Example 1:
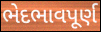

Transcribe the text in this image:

ભેદભાવપૂર્ણ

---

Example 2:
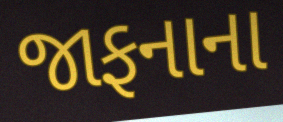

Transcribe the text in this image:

જાફનાના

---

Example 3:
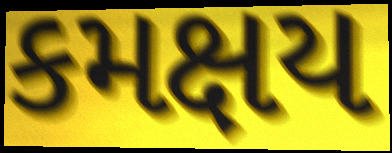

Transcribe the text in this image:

કમક્ષય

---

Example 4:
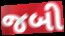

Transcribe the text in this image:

જબી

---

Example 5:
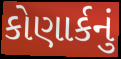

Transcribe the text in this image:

કોણાર્કનું